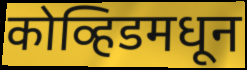
कोव्हिडमधून